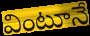
వింటూనే